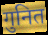
गुनित